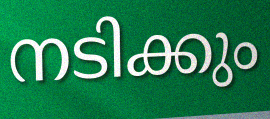
നടിക്കും